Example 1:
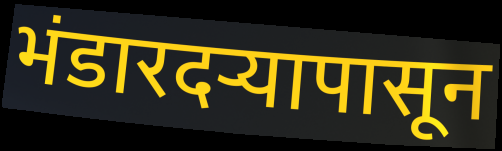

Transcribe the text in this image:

भंडारदऱ्यापासून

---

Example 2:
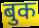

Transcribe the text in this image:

बुक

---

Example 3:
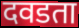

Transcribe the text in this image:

दवडता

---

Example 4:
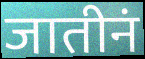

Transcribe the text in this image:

जातीनं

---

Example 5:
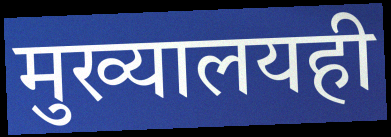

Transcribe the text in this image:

मुख्यालयही